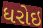
ધરોઇ